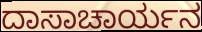
ದಾಸಾಚಾರ್ಯನ